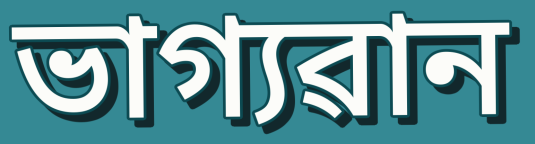
ভাগ্যৱান